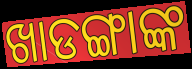
ଖାଡଙ୍ଗାଙ୍କ